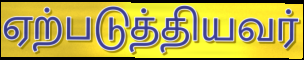
ஏற்படுத்தியவர்